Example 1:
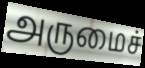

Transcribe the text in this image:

அருமைச்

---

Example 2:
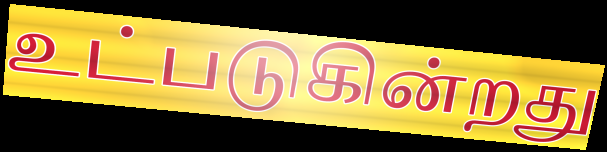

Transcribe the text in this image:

உட்படுகின்றது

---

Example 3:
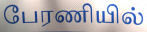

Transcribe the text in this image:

பேரணியில்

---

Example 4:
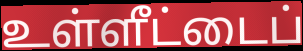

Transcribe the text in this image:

உள்ளீட்டைப்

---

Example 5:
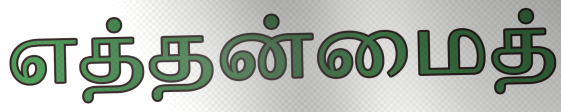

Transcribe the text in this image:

எத்தன்மைத்